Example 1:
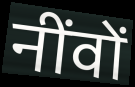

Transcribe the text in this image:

नींवों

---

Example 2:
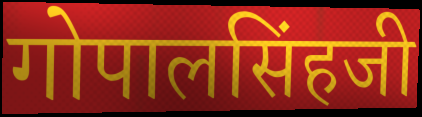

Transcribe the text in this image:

गोपालसिंहजी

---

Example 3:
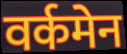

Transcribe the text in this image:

वर्कमेन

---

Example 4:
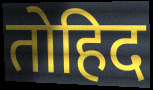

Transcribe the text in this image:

तोहिद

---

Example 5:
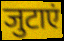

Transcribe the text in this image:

जुटाएं